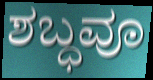
ಶಬ್ಧವೂ